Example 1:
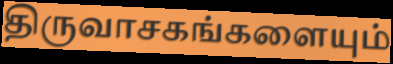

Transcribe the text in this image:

திருவாசகங்களையும்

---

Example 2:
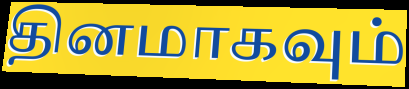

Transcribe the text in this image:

தினமாகவும்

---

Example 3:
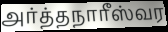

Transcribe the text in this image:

அர்த்தநாரீஸ்வர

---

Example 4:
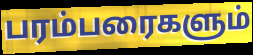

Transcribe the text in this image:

பரம்பரைகளும்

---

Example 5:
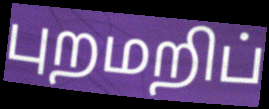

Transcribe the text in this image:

புறமறிப்